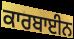
ਕਾਰਬਾਈਨ